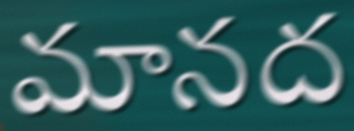
మానద